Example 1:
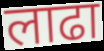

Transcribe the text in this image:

लाढा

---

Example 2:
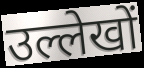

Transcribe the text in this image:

उल्लेखों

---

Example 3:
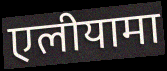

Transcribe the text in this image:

एलीयामा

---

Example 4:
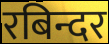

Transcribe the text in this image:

रबिन्दर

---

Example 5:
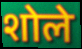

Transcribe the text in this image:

शोले